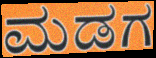
ಮಡಗ